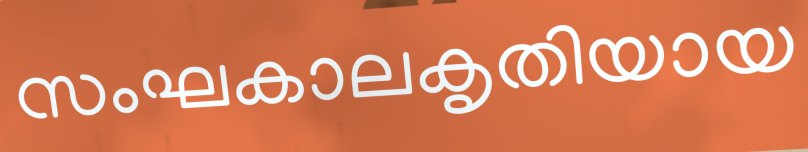
സംഘകാലകൃതിയായ